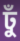
ঢুঁ